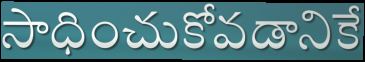
సాధించుకోవడానికే